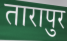
तारापुर